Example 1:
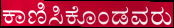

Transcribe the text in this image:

ಕಾಣಿಸಿಕೊಂಡವರು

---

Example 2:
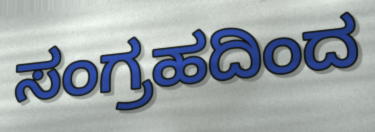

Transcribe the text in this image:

ಸಂಗ್ರಹದಿಂದ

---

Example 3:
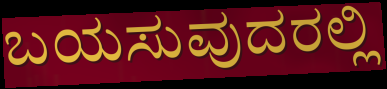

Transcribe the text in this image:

ಬಯಸುವುದರಲ್ಲಿ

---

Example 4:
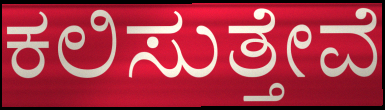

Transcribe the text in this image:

ಕಲಿಸುತ್ತೇವೆ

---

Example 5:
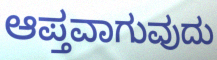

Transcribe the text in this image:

ಆಪ್ತವಾಗುವುದು